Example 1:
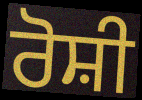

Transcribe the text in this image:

ਰੋਸ਼ੀ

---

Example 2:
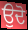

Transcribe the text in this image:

ਉਦੋ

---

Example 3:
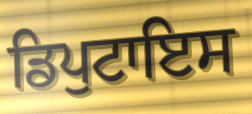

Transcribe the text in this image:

ਡਿਪੁਟਾਇਸ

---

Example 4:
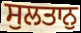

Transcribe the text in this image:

ਸੁਲਤਾਨੁ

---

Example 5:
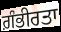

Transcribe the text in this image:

ਗ਼ੰਭੀਰਤਾ